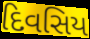
દિવસિય